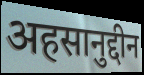
अहसानुद्दीन